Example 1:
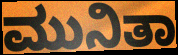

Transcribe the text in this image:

ಮುನಿತಾ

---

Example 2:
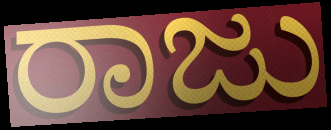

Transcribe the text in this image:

ರಾಜು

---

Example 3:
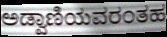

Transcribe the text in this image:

ಅಡ್ವಾಣಿಯವರಂತಹ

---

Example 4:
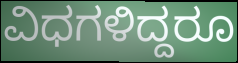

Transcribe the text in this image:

ವಿಧಗಳಿದ್ದರೂ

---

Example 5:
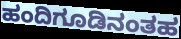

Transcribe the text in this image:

ಹಂದಿಗೂಡಿನಂತಹ